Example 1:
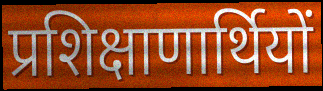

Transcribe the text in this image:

प्रशिक्षाणार्थियों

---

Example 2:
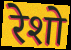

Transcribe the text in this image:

रेशो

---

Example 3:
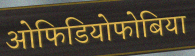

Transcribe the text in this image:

ओफिडियोफोबिया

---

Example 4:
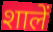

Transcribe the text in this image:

शालें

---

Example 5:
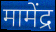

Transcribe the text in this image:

मामेंद्र